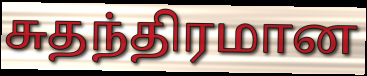
சுதந்திரமான